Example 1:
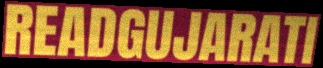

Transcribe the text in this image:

READGUJARATI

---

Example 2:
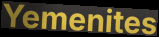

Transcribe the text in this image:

Yemenites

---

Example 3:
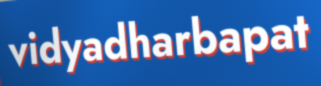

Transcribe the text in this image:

vidyadharbapat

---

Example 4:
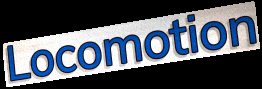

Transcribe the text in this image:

Locomotion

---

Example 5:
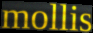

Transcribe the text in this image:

mollis